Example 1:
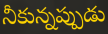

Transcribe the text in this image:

నీకున్నప్పుడు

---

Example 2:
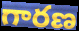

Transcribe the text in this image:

గారణ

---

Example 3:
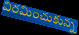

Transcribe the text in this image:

విరమించుకున్న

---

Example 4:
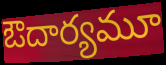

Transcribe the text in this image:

ఔదార్యమూ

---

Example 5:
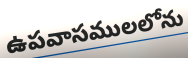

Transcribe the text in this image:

ఉపవాసములలోను